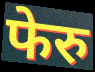
फेरु